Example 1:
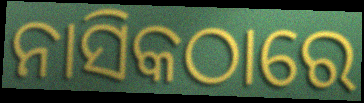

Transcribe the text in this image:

ନାସିକଠାରେ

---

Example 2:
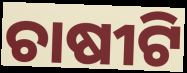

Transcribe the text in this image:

ଚାଷୀଟି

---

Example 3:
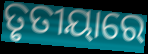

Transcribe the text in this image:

ତୃତୀୟାରେ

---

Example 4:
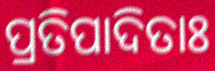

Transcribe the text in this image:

ପ୍ରତିପାଦିତାଃ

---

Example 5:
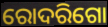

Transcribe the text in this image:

ରୋଦରିଗୋ